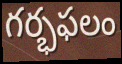
గర్భఫలం